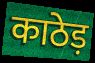
काठेड़